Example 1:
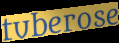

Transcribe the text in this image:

tuberose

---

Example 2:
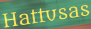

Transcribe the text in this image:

Hattusas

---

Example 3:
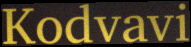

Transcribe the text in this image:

Kodvavi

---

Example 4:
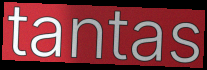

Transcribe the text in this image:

tantas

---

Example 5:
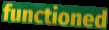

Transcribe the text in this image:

functioned